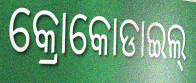
କ୍ରୋକୋଡାଇଲ୍